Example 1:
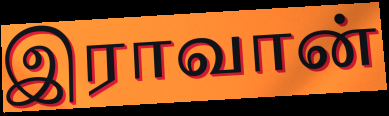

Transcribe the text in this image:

இராவான்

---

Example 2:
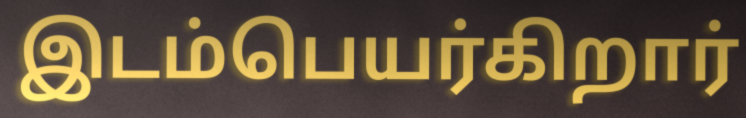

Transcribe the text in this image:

இடம்பெயர்கிறார்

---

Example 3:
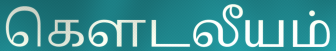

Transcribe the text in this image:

கெளடலீயம்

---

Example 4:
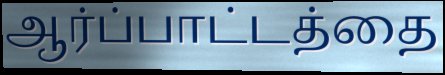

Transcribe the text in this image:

ஆர்ப்பாட்டத்தை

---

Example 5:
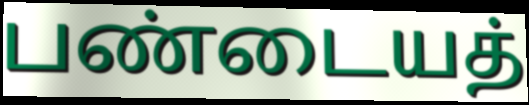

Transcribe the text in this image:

பண்டையத்